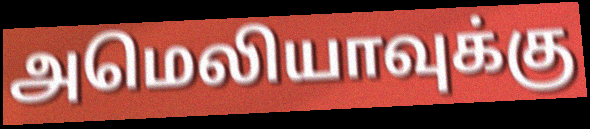
அமெலியாவுக்கு